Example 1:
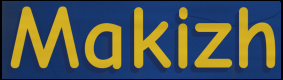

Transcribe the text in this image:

Makizh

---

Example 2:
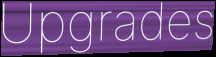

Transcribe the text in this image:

Upgrades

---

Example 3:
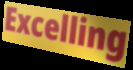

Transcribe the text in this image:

Excelling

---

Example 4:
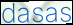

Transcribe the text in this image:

dasas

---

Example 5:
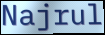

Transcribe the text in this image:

Najrul